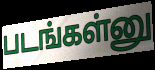
படங்கள்னு